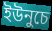
ইউনুচে